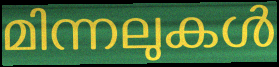
മിന്നലുകൾ